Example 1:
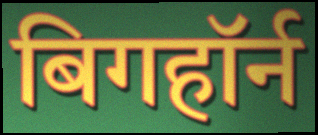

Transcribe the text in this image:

बिगहॉर्न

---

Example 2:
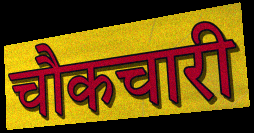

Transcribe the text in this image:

चौकचारी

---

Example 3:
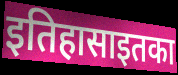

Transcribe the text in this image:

इतिहासाइतका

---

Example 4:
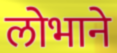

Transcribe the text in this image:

लोभाने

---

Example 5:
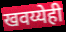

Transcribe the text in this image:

खवय्येही